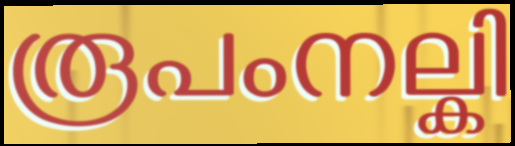
രൂപംനല്കി